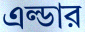
এল্ডার